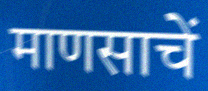
माणसाचें